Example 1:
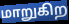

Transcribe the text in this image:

மாறுகிற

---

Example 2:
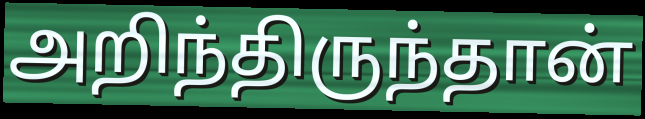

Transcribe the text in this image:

அறிந்திருந்தான்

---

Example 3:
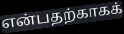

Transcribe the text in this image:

என்பதற்காகக்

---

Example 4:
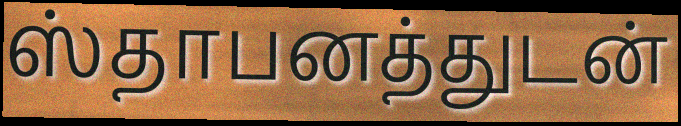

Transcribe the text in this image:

ஸ்தாபனத்துடன்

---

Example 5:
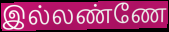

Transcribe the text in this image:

இல்லண்ணே